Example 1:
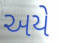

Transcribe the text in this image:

અયે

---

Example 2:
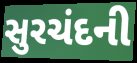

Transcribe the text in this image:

સુરચંદની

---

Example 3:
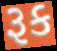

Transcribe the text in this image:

રૂક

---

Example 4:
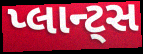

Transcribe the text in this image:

પ્લાન્ટ્સ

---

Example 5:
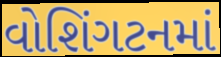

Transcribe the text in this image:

વોશિંગટનમાં